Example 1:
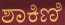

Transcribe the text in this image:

ಶಾಕಿಣಿ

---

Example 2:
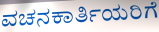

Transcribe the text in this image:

ವಚನಕಾರ್ತಿಯರಿಗೆ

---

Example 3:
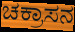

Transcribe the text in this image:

ಚಕ್ರಾಸನ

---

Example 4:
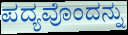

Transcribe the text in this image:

ಪದ್ಯವೊಂದನ್ನು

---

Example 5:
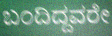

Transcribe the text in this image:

ಬಂದಿದ್ದವರೇ